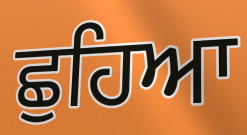
ਛੁਹਿਆ